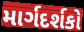
માર્ગદર્શકો